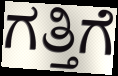
ಗತ್ತಿಗೆ